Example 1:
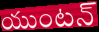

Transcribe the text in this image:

యుంటన్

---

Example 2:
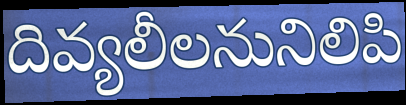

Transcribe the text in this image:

దివ్యలీలనునిలిపి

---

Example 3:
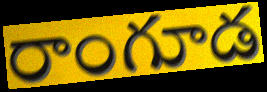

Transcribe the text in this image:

రాంగూడ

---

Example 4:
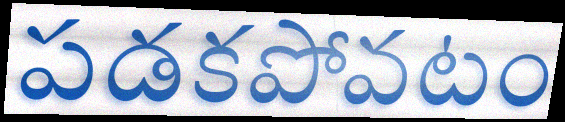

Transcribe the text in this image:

పడకపోవటం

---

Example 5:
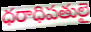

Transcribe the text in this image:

ధరాధిపతులై